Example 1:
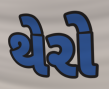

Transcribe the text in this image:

થેરો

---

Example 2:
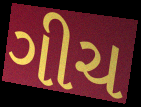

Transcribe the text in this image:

ગીચ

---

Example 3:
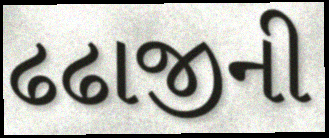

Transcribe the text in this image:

ઢઢાજીની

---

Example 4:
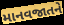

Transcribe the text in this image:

માનવજાતને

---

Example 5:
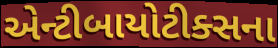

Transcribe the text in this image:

એન્ટીબાયોટીક્સના